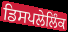
ਡਿਸਪਲੇਲਿੰਕ